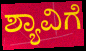
ಶ್ಯಾವಿಗೆ